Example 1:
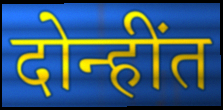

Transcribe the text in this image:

दोन्हींत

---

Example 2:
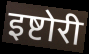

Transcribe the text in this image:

इष्टोरी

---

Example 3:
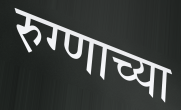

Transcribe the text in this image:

रुग्णाच्या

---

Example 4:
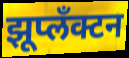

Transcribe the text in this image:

झूप्लँक्टन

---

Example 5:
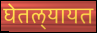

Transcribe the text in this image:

घेतल्यायत